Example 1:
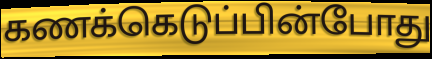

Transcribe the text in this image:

கணக்கெடுப்பின்போது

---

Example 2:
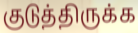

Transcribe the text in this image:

குடுத்திருக்க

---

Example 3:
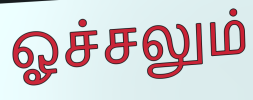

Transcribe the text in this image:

ஓச்சலும்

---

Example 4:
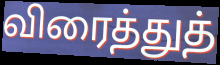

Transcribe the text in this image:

விரைத்துத்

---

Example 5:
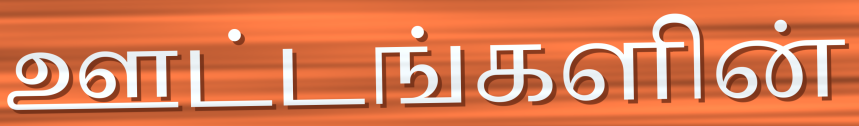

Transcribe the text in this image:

ஊட்டங்களின்